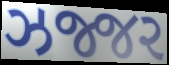
ઝજ્જર